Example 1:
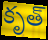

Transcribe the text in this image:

కృత్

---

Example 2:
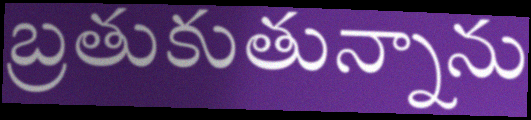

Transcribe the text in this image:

బ్రతుకుతున్నాను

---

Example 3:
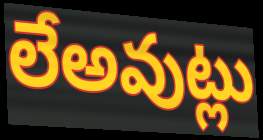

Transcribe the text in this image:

లేఅవుట్లు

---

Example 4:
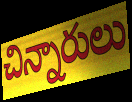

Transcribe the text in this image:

చిన్నారులు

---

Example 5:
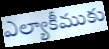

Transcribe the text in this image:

ఎల్యాకీముకు